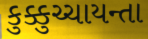
કુક્કુચ્ચાયન્તા